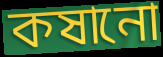
কষানো